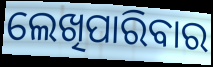
ଲେଖିପାରିବାର